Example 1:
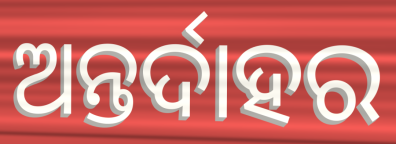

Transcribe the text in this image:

ଅନ୍ତର୍ଦାହର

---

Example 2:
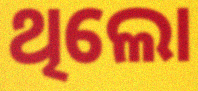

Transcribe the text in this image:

ଥିଲୋ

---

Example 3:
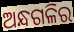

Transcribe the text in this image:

ଅନ୍ଧଗଳିର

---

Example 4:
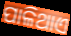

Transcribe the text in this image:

ପାଳିଥାଏ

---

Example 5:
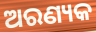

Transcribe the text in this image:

ଅରଣ୍ୟକ